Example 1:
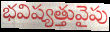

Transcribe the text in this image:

భవిష్యత్తువైపు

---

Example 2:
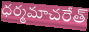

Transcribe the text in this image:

ధర్మమాచరేత్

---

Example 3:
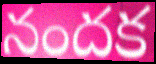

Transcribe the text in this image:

నందక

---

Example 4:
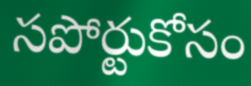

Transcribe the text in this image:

సపోర్టుకోసం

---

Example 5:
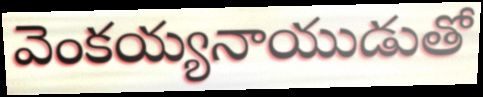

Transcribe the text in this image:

వెంకయ్యనాయుడుతో